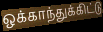
ஒக்காந்துக்கிட்டு